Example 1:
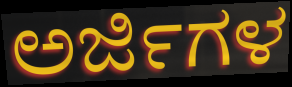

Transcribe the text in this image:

ಅರ್ಜಿಗಳ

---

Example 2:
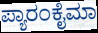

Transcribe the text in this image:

ಪ್ಯಾರಂಕೈಮಾ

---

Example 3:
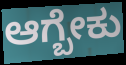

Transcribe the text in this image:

ಆಗ್ಬೇಕು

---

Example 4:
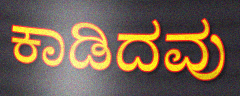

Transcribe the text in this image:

ಕಾಡಿದವು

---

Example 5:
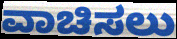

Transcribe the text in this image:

ವಾಚಿಸಲು